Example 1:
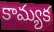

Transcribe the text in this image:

కామ్యక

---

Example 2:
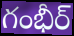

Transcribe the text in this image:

గంభీర్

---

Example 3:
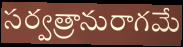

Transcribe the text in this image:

సర్వత్రానురాగమే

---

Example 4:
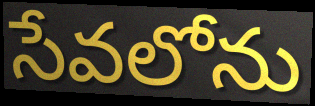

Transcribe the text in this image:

సేవలోను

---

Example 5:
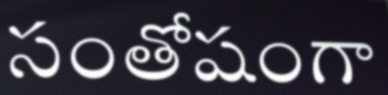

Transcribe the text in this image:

సంతోషంగా